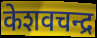
केशवचन्द्र